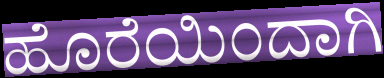
ಹೊರೆಯಿಂದಾಗಿ